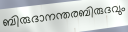
ബിരുദാനന്തരബിരുദവും